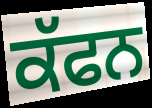
ਕੱਫਨ